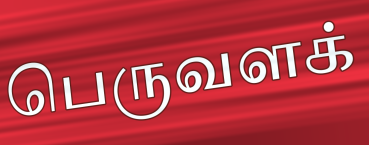
பெருவளக்